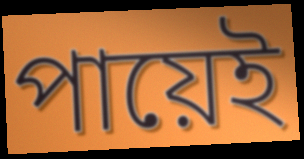
পায়েই